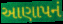
આણાપનં